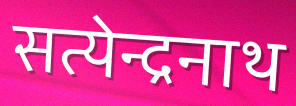
सत्येन्द्रनाथ